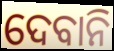
ଦେବାନି